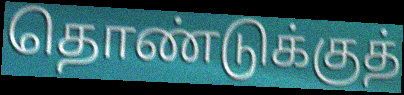
தொண்டுக்குத்